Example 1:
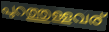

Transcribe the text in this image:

പുറത്തുള്ളവര്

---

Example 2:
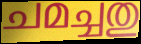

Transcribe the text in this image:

ചമച്ചതു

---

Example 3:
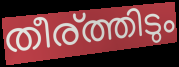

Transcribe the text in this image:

തീര്ത്തിടും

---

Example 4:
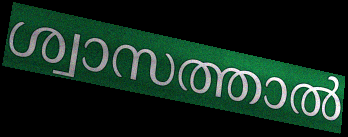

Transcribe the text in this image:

ശ്വാസത്താൽ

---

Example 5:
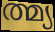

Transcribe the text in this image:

ത്മ്യ